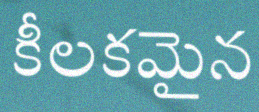
కీలకమైన